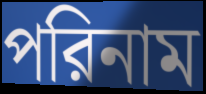
পরিনাম